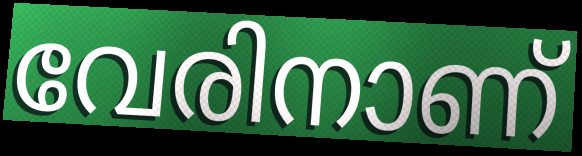
വേരിനാണ്